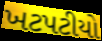
ખટપટીયો